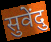
सुवेंदु